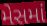
મેસમાં